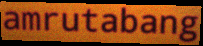
amrutabang